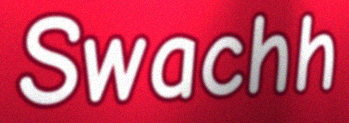
Swachh